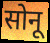
सोनू